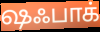
ஷஃபாக்